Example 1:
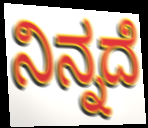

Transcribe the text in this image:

ನಿನ್ನದೆ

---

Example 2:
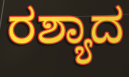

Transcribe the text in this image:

ರಶ್ಯಾದ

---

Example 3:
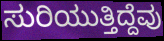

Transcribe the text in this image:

ಸುರಿಯುತ್ತಿದ್ದೆವು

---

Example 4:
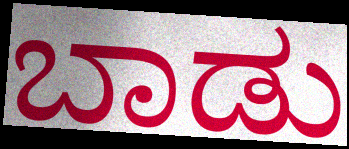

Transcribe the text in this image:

ಬಾಡು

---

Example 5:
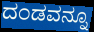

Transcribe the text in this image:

ದಂಡವನ್ನೂ